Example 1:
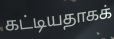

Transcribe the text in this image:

கட்டியதாகக்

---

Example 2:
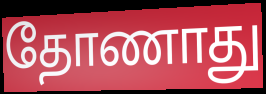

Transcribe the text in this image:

தோணாது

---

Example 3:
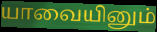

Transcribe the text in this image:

யாவையினும்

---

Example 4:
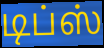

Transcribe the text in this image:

டிப்ஸ்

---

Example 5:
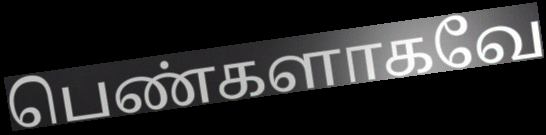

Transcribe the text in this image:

பெண்களாகவே